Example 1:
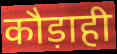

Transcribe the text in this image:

कौड़ाही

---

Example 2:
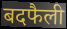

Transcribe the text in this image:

बदफैली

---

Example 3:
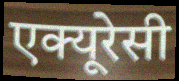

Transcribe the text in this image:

एक्यूरेसी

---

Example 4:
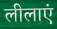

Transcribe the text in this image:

लीलाएं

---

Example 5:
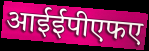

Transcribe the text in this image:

आईईपीएफए